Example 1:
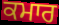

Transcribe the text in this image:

ਕਮਾਰ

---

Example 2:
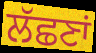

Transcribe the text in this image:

ਲੱਛਣਾਂ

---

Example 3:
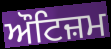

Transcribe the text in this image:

ਔਟਿਜ਼ਮ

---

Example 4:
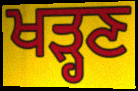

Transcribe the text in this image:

ਖੜ੍ਹਣ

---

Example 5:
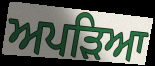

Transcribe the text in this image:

ਅਪੜਿਆ